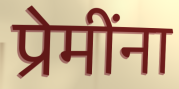
प्रेमींना